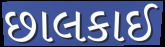
છાલકાઈ